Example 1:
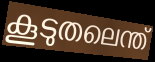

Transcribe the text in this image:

കൂടുതലെന്ത്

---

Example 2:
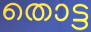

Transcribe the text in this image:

തൊട്ട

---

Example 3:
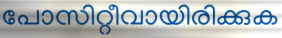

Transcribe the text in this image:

പോസിറ്റീവായിരിക്കുക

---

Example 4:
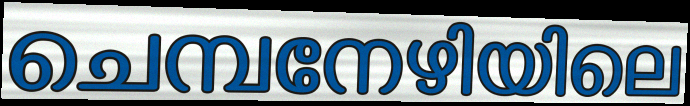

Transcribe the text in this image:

ചെമ്പനേഴിയിലെ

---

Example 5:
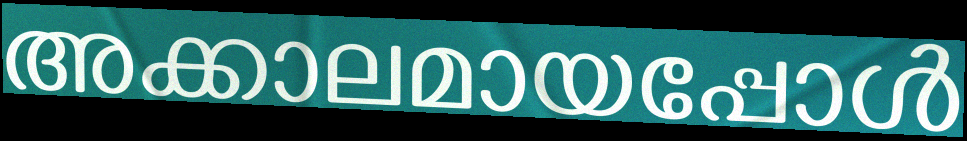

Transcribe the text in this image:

അക്കാലമായപ്പോൾ